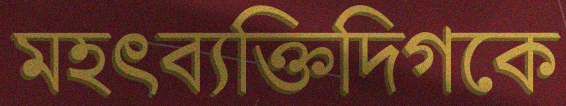
মহৎব্যক্তিদিগকে